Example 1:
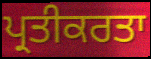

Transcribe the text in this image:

ਪ੍ਰਤੀਕਰਤਾ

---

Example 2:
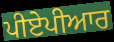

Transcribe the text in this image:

ਪੀਏਪੀਆਰ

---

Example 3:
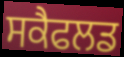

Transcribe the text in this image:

ਸਕੈਫਲਡ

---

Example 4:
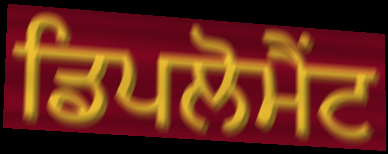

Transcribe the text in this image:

ਡਿਪਲੋਮੈਂਟ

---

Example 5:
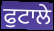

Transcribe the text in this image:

ਫੁਟਾਲੇ